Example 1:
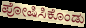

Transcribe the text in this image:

ಪೋಷಿಸಿಕೊಂಡು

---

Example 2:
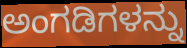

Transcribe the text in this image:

ಅಂಗಡಿಗಳನ್ನು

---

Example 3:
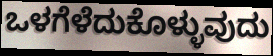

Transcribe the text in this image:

ಒಳಗೆಳೆದುಕೊಳ್ಳುವುದು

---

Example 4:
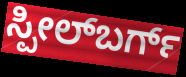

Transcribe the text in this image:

ಸ್ಪೀಲ್‌ಬರ್ಗ್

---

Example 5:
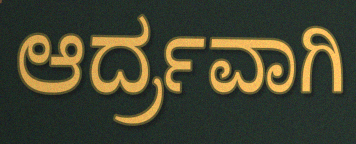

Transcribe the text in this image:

ಆರ್ದ್ರವಾಗಿ